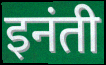
इनंती